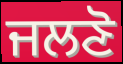
ਜਲਣੋ